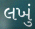
લખું